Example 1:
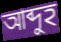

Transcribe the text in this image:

আব্দুহ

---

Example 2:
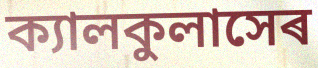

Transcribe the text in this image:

ক্যালকুলাসেৰ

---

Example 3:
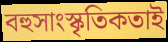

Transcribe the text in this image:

বহুসাংস্কৃতিকতাই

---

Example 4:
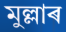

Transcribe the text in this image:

মুল্লাৰ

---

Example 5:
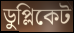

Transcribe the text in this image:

ডুপ্লিকেট